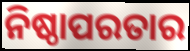
ନିଷ୍ଠାପରତାର